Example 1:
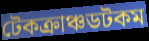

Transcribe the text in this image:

টেকক্রাঞ্চডটকম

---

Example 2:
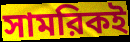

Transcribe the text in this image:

সামরিকই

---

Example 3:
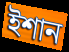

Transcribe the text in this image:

ইশান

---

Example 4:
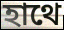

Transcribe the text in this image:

হাথে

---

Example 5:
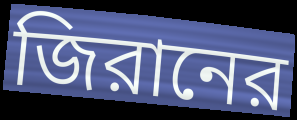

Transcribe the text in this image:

জিরানের